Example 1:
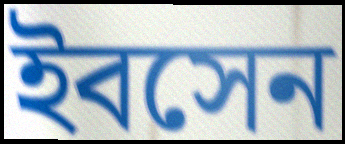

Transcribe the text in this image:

ইবসেন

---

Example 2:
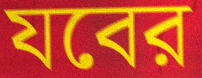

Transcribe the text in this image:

যবের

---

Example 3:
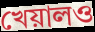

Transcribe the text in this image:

খেয়ালও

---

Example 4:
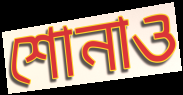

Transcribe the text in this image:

শোনাও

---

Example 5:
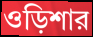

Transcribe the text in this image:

ওড়িশার